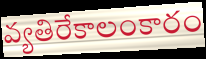
వ్యతిరేకాలంకారం